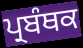
ਪ੍ਰਬੰਥਕ